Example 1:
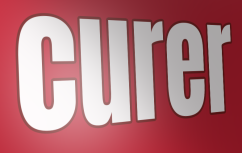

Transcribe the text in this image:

curer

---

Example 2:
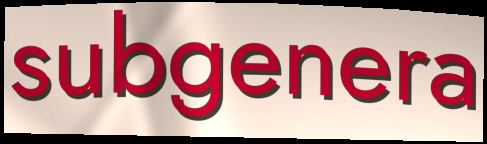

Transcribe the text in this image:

subgenera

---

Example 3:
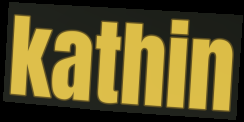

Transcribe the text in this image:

kathin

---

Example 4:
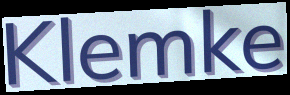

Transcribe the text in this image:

Klemke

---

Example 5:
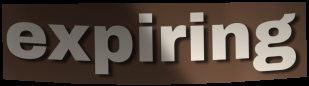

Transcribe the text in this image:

expiring